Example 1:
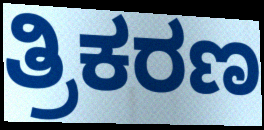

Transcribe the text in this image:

ತ್ರಿಕರಣ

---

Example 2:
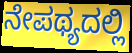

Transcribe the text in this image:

ನೇಪಥ್ಯದಲ್ಲಿ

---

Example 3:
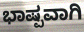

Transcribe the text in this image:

ಭಾಷ್ಪವಾಗಿ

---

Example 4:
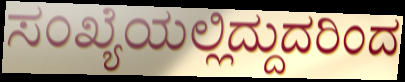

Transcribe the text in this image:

ಸಂಖ್ಯೆಯಲ್ಲಿದ್ದುದರಿಂದ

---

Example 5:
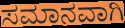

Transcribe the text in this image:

ಸಮಾನವಾಗಿ